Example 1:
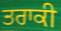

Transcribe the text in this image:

ਤਰਾਕੀ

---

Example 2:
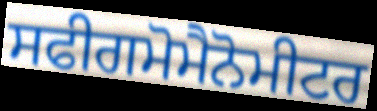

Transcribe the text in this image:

ਸਫੀਗਮੋਮੈਨੋਮੀਟਰ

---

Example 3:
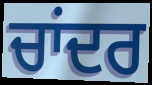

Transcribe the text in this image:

ਚਾਂਦਰ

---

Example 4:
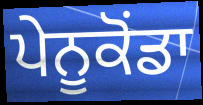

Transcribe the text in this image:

ਪੇਨੂਕੋਂਡਾ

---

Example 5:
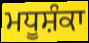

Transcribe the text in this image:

ਮਧੂਸ਼ੰਕਾ